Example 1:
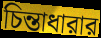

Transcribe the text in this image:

চিন্তাধারার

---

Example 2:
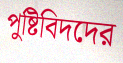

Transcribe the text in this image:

পুষ্টিবিদদের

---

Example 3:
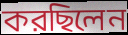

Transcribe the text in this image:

করছিলেন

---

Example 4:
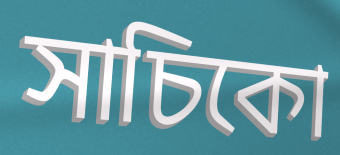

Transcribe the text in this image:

সাচিকো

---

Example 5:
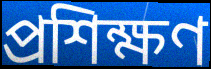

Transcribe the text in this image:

প্রশিক্ষণ